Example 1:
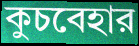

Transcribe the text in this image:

কুচবেহার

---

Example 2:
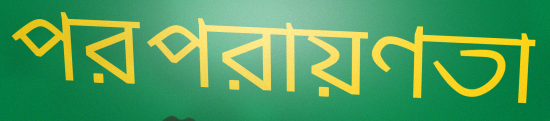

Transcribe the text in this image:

পরপরায়ণতা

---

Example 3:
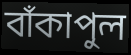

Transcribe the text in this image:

বাঁকাপুল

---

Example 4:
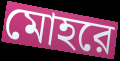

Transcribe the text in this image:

মোহরে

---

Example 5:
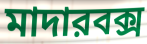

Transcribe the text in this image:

মাদারবক্স